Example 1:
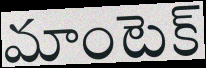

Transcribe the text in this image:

మాంటెక్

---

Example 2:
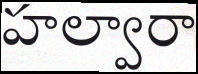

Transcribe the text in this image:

హల్వారా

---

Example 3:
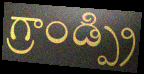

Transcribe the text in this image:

గ్రాండ్ప్రి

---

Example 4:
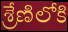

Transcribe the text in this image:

శ్రేణిలోకి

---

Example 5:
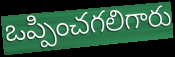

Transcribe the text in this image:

ఒప్పించగలిగారు